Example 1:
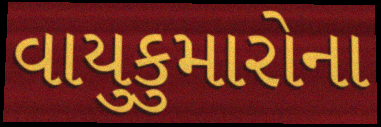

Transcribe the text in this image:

વાયુકુમારોના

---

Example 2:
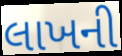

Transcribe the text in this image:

લાખની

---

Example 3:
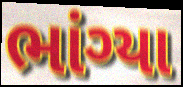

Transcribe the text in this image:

ભાંગ્યા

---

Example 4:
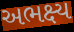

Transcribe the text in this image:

અભક્ષ્ય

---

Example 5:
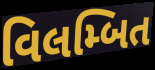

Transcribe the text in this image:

વિલમ્બિત